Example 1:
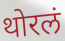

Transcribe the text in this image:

थोरलं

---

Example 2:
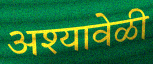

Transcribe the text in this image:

अश्यावेळी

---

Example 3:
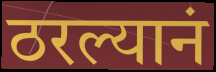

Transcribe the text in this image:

ठरल्यानं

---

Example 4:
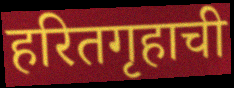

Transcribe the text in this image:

हरितगृहाची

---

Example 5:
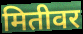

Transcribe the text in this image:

मितीवर